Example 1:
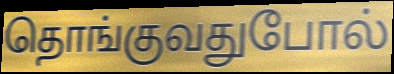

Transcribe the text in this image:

தொங்குவதுபோல்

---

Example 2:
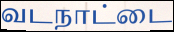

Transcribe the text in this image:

வடநாட்டை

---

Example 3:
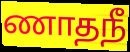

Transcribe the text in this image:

ணாதநீ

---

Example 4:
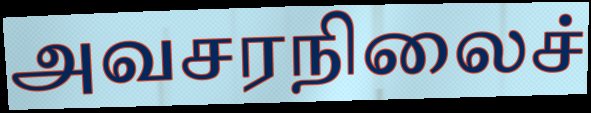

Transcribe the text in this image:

அவசரநிலைச்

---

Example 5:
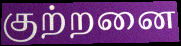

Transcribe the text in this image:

குற்றனை